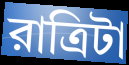
রাত্রিটা